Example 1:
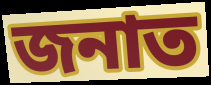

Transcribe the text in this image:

জনাত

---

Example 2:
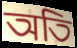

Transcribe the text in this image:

অতি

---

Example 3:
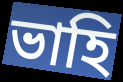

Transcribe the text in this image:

ভাহি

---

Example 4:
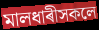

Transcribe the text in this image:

মালধাৰীসকলে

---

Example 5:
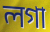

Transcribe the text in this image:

লগা